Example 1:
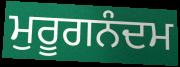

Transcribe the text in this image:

ਮੁਰੂਗਨੰਦਮ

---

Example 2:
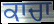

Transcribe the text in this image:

ਕਾਚਾ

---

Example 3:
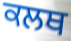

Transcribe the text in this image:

ਕਲਥ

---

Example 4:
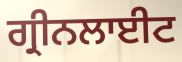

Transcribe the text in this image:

ਗ੍ਰੀਨਲਾਈਟ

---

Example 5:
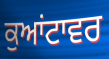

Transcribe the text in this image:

ਕੁਆਂਟਾਵਰ